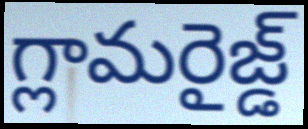
గ్లామరైజ్డ్